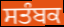
ਸਤੰਬਕ